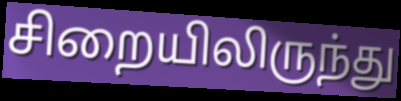
சிறையிலிருந்து